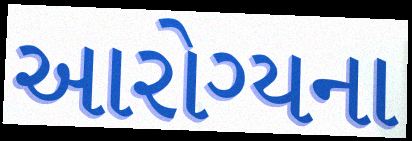
આરોગ્યના